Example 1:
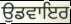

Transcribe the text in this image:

ਉਡਵਾਇਰ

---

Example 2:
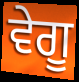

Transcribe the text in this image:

ਵੇਗੂ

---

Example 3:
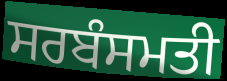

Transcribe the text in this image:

ਸਰਬੰਸਮਤੀ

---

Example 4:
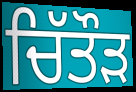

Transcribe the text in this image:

ਚਿੱਤੌੜ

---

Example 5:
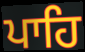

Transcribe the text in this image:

ਪਾਹਿ